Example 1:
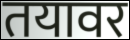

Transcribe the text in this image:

तयावर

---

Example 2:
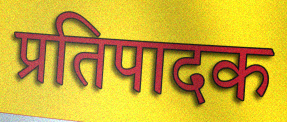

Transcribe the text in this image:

प्रतिपादक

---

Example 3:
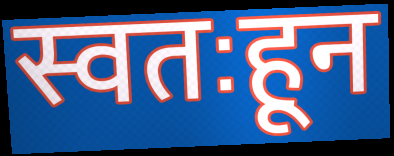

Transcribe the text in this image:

स्वतःहून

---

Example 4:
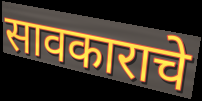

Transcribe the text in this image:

सावकाराचे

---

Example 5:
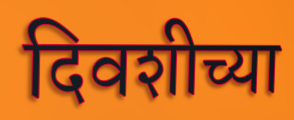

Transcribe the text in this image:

दिवशीच्या